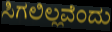
ಸಿಗಲಿಲ್ಲವೆಂದು